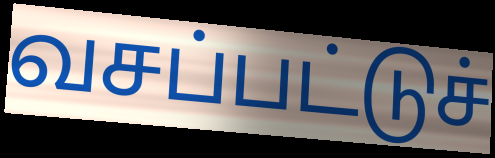
வசப்பட்டுச்